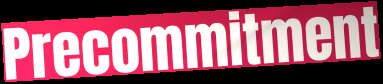
Precommitment